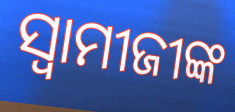
ସ୍ଵାମୀଜୀଙ୍କ